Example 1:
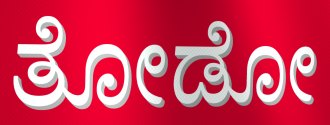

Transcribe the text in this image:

ತೋಡೋ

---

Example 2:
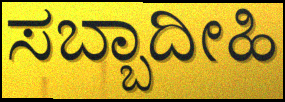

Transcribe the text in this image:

ಸಬ್ಬಾದೀಹಿ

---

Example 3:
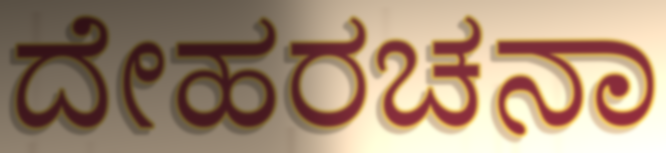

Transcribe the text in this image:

ದೇಹರಚನಾ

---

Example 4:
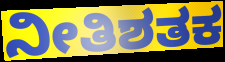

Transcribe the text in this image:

ನೀತಿಶತಕ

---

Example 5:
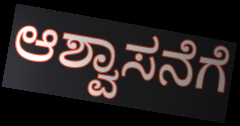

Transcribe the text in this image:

ಆಶ್ವಾಸನೆಗೆ